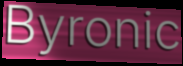
Byronic